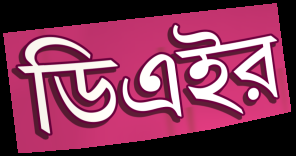
ডিএইর